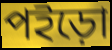
পইড়ো